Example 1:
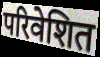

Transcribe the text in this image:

परिवेशित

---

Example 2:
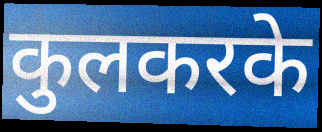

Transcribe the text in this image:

कुलकरके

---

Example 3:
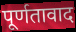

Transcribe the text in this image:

पूर्णतावाद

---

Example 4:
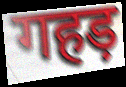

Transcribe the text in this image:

गहड़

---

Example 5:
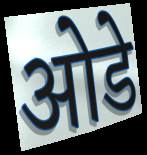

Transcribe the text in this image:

ओडे